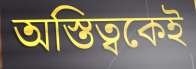
অস্তিত্বকেই